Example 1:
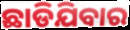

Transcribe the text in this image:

ଛାଡିଯିବାର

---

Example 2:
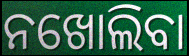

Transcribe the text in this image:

ନଖୋଲିବା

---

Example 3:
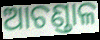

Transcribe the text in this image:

ଆଚଣ୍ଡାଳ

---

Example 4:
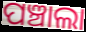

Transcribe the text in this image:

ପଞ୍ଚାଲା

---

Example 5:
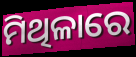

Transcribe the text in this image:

ମିଥିଳାରେ